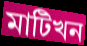
মাটিখন